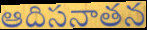
ఆదిసనాతన